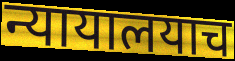
न्यायालयाच